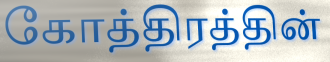
கோத்திரத்தின்